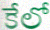
కేలో